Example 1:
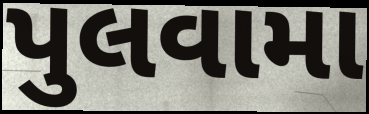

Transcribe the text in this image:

પુલવામા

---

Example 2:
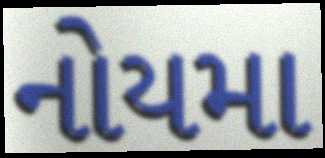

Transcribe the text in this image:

નોયમા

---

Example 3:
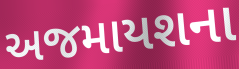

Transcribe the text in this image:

અજમાયશના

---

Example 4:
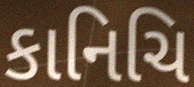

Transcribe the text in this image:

કાનિચિ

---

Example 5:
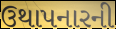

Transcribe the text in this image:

ઉથાપનારની